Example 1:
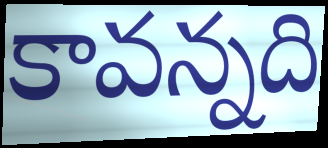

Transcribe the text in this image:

కావన్నది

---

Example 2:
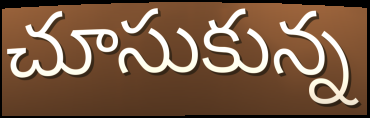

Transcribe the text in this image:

చూసుకున్న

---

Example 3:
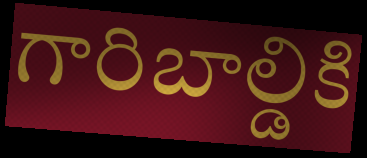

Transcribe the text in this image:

గారిబాల్డికి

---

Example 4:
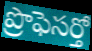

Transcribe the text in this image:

ప్రొఫెసర్తో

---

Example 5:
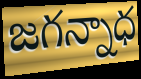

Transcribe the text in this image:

జగన్నాధ